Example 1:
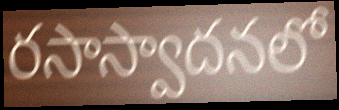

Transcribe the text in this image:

రసాస్వాదనలో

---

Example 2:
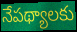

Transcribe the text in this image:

నేపథ్యాలకు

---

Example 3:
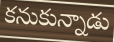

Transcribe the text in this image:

కనుకున్నాడు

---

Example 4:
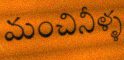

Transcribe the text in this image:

మంచినీళ్ళ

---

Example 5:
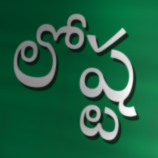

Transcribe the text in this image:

లోష్ట